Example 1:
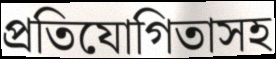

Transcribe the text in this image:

প্রতিযোগিতাসহ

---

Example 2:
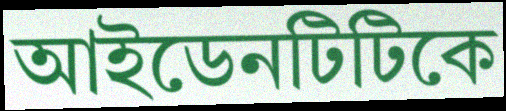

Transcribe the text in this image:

আইডেনটিটিকে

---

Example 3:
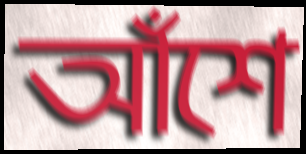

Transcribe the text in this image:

আঁশে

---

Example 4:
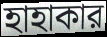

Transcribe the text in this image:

হাহাকার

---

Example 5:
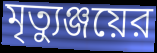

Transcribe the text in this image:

মৃত্যুঞ্জয়ের